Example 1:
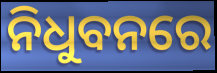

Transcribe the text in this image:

ନିଧୁବନରେ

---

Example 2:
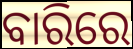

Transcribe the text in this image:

ବାରିରେ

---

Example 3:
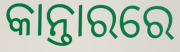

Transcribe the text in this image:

କାନ୍ତାରରେ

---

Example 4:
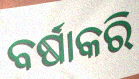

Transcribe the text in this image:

ବର୍ଷାକରି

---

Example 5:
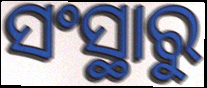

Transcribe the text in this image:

ସଂସ୍ଥାରୁ